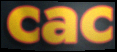
cac